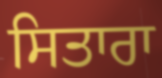
ਸਿਤਾਰਾ